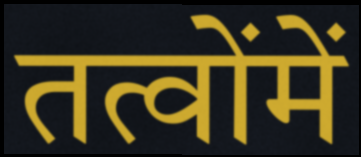
तत्वोंमें